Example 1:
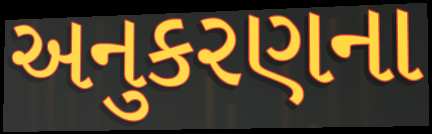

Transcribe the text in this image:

અનુકરણના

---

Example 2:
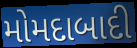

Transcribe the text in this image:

મોમદાબાદી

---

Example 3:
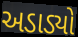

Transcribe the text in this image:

અડાડ્યો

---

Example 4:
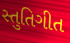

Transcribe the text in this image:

સ્તુતિગીત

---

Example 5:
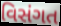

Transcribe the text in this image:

વિસંગત